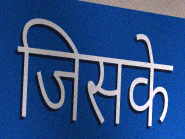
जिसके